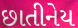
છાતીનેય